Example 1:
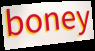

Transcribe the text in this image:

boney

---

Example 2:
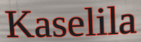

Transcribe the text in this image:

Kaselila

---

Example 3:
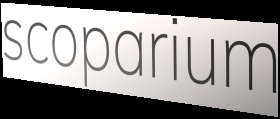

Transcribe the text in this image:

scoparium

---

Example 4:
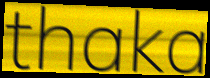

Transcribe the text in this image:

thaka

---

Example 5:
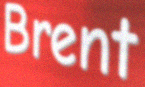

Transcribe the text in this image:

Brent